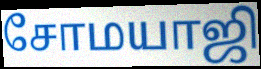
சோமயாஜி